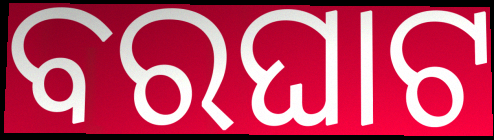
ବରଘାଟ